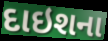
દાઇશના